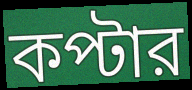
কপ্টার